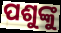
ପଶୁଙ୍କୁ